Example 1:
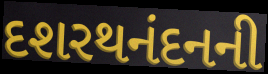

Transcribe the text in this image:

દશરથનંદનની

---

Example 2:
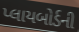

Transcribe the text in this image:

પ્લાયબોર્ડની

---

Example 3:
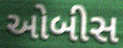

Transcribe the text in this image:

ઓબીસ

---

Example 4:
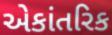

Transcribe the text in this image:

એકાંતરિક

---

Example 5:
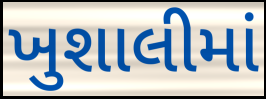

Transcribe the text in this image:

ખુશાલીમાં